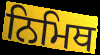
ਨਿਮਿਥ